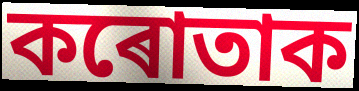
কৰোতাক